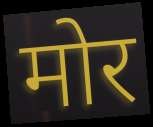
मोर